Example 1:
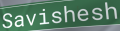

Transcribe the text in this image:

Savishesh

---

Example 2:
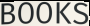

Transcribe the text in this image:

BOOKS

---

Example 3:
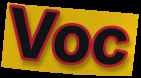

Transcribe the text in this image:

Voc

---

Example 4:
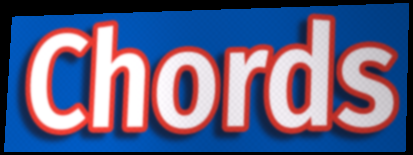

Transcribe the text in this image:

Chords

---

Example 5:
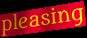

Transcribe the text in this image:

pleasing